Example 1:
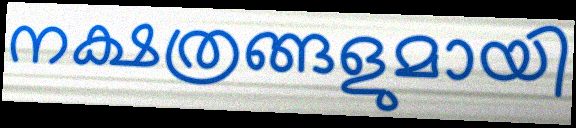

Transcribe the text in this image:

നക്ഷത്രങ്ങളുമായി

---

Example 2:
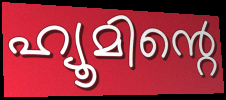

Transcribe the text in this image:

ഹ്യൂമിന്റെ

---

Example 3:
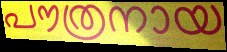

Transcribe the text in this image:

പൗത്രനായ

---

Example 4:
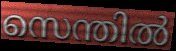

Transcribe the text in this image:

സെന്തിൽ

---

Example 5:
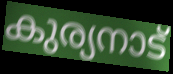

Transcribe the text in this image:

കുര്യനാട്